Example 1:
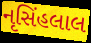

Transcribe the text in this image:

નૃસિંહલાલ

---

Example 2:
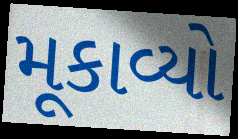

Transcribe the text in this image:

મૂકાવ્યો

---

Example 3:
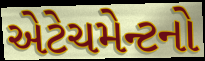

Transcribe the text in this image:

એટેચમેન્ટનો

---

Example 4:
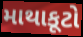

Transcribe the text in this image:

માથાકૂટો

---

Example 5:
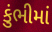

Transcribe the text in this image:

કુંભીમાં